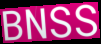
BNSS